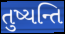
તુષ્યન્તિ